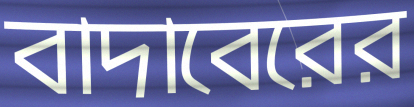
বাদাবেরের